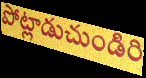
పోట్లాడుచుండిరి